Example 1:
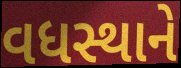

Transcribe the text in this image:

વધસ્થાને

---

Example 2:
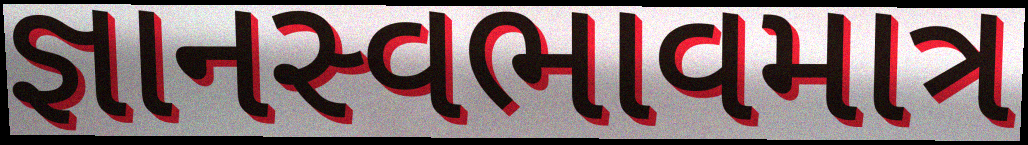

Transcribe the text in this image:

જ્ઞાનસ્વભાવમાત્ર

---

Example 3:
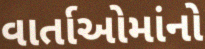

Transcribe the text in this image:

વાર્તાઓમાંનો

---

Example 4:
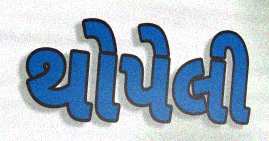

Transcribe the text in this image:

થોપેલી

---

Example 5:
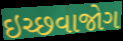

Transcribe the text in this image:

ઇચ્છવાજોગ